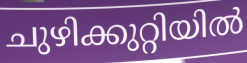
ചുഴിക്കുറ്റിയിൽ